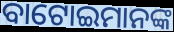
ବାଟୋଇମାନଙ୍କ